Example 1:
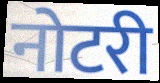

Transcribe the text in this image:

नोटरी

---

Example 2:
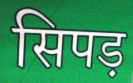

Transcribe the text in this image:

सिपड़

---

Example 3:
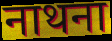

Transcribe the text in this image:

नाथना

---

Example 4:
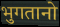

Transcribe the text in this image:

भुगतानो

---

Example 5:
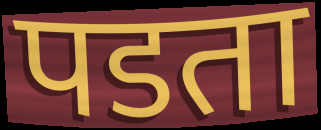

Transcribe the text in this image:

पडता